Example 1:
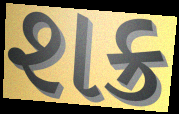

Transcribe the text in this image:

શક્ર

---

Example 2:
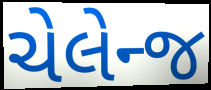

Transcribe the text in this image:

ચેલેન્જ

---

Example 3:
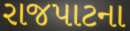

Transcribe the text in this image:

રાજપાટના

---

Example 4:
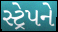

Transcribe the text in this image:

સ્ટ્રેપને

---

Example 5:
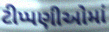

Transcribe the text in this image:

ટીપ્પણીઓમાં